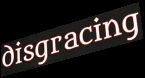
disgracing